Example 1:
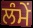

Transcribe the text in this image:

ਲੰਮੇਂ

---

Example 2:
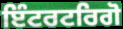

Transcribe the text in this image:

ਇੰਟਰਟਰਿਗੋ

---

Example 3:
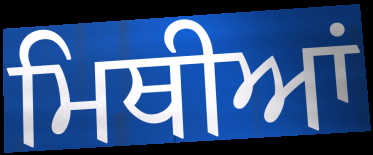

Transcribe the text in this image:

ਮਿਥੀਆਂ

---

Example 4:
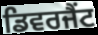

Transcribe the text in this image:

ਡਿਵਰਜੈਂਟ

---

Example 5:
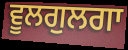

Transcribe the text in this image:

ਵੂਲਗੁਲਗਾ